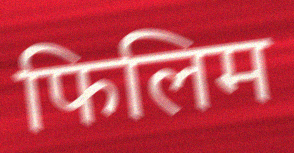
फिलिम